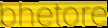
bhetore